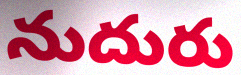
నుదురు